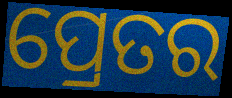
ପ୍ରେତର